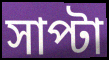
সাপ্টা